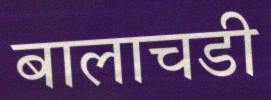
बालाचडी